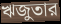
ঋজুতার